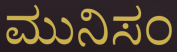
ಮುನಿಸಂ